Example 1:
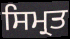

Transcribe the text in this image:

ਸਿਮ੍ਰਤ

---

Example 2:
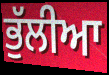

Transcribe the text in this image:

ਭੁੱਲੀਆ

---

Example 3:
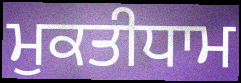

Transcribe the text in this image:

ਮੁਕਤੀਧਾਮ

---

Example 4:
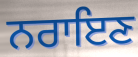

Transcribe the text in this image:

ਨਰਾਇਣ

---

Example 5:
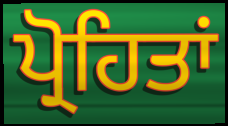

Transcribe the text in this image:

ਪ੍ਰੋਹਿਤਾਂ